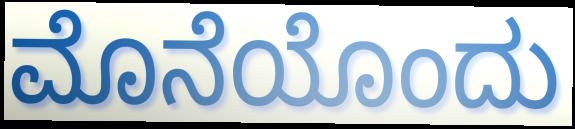
ಮೊನೆಯೊಂದು